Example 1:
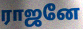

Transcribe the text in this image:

ராஜனே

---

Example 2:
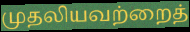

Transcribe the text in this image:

முதலியவற்றைத்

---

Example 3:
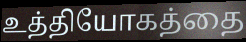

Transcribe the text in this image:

உத்தியோகத்தை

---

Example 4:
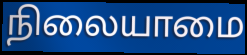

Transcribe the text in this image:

நிலையாமை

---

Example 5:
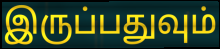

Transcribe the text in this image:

இருப்பதுவும்